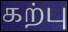
கற்பு